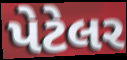
પેટેલર